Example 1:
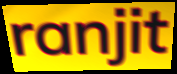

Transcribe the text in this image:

ranjit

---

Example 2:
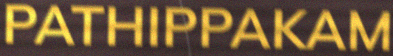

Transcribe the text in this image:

PATHIPPAKAM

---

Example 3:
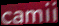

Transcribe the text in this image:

camii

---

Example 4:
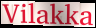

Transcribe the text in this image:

Vilakka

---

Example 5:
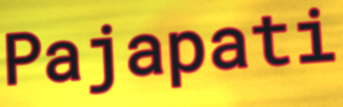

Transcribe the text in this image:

Pajapati